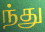
ந்து